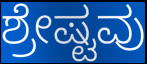
ಶ್ರೇಷ್ಟವು